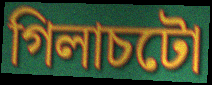
গিলাচটো